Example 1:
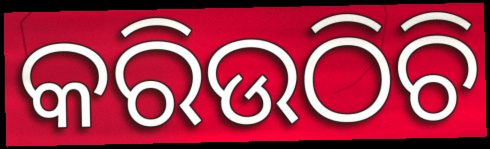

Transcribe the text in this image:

କରିଉଠିଚି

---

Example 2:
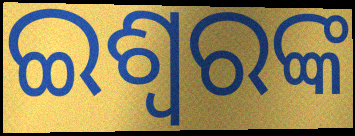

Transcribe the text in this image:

ଇଶ୍ୱରଙ୍କ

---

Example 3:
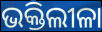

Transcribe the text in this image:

ଭକ୍ତିଲୀଳା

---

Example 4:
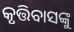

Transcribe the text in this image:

କୃତ୍ତିବାସଙ୍କୁ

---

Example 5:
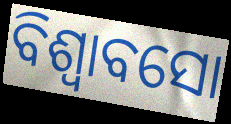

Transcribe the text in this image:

ବିଶ୍ୱାବସୋ